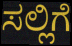
ಸಲ್ಲಿಗೆ